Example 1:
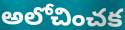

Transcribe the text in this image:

అలోచించక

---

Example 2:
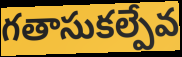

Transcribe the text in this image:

గతాసుకల్పేవ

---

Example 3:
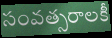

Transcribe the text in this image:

సంవత్సరాలకీ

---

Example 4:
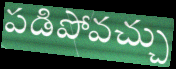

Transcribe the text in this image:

పడిపోవచ్చు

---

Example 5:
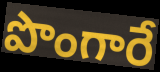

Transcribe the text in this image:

పొంగారే